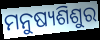
ମନୁଷ୍ୟଶିଶୁର